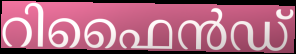
റിഫൈൻഡ്